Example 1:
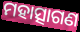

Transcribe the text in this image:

ମହାତ୍ସାଗଣ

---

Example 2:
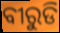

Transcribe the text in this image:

ବୀରୁଡି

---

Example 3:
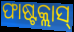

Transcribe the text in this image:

ଫାଷ୍ଟକ୍ଲାସ୍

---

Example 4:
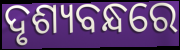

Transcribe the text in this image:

ଦୃଶ୍ୟବନ୍ଧରେ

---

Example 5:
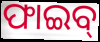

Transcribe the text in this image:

ଫାଇବ୍